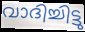
വാദിച്ചിട്ടു